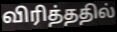
விரித்ததில்